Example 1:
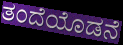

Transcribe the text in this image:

ತಂದೆಯೊಡನೆ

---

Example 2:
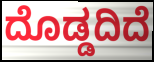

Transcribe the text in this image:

ದೊಡ್ಡದಿದೆ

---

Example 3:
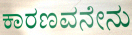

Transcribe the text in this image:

ಕಾರಣವನೇನು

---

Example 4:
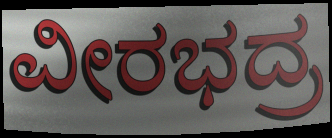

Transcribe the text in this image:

ವೀರಭದ್ರ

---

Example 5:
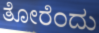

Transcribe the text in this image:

ತೋರೆಂದು